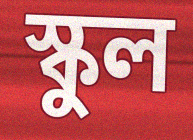
স্কুল